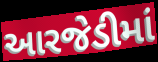
આરજેડીમાં